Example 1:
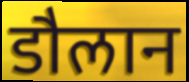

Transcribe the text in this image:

डौलान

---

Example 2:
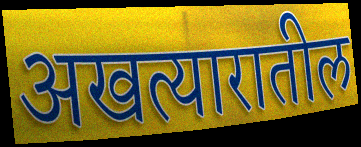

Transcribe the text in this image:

अखत्यारातील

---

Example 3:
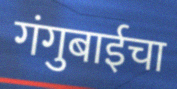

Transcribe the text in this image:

गंगुबाईचा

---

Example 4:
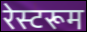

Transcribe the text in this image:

रेस्टरूम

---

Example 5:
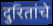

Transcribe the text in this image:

दुरितांचे